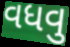
વધવુ